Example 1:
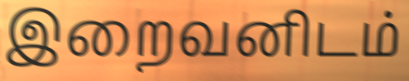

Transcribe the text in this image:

இறைவனிடம்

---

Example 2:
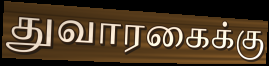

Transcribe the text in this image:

துவாரகைக்கு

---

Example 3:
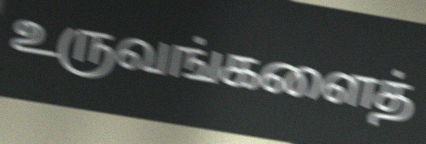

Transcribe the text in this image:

உருவங்களைத்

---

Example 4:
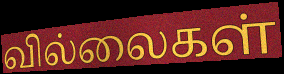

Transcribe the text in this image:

வில்லைகள்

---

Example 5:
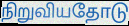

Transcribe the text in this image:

நிறுவியதோடு